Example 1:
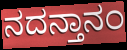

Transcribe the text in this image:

ನದನ್ತಾನಂ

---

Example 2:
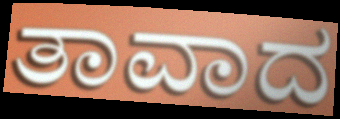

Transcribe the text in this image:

ತಾವಾದ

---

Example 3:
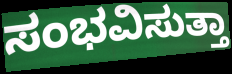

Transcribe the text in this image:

ಸಂಭವಿಸುತ್ತಾ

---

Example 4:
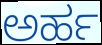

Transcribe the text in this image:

ಅರ್ಹ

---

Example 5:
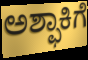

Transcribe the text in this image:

ಅಶ್ಫಾಕಿಗೆ